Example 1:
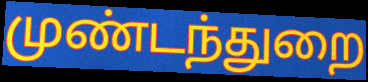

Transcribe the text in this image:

முண்டந்துறை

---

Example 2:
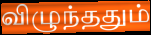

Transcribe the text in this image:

விழுந்ததும்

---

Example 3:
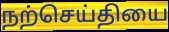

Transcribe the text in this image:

நற்செய்தியை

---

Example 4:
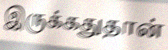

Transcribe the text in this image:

இருக்கதுதான்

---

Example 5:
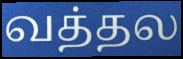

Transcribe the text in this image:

வத்தல